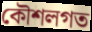
কৌশলগত